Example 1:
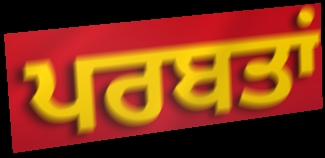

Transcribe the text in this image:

ਪਰਬਤਾਂ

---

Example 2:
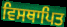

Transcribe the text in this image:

ਵਿਸਥਾਪਿਤ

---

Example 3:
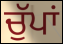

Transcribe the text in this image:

ਚੁੱਪਾਂ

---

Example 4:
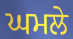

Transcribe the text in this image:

ਘਮਲੇ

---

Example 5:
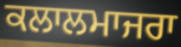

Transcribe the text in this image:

ਕਲਾਲਮਾਜਰਾ